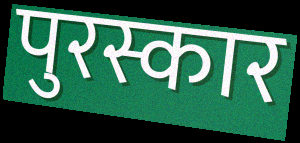
पुरस्कार